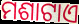
ମଶାଟାଏ